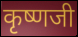
कृष्णजी